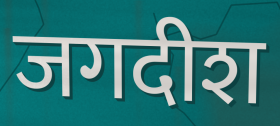
जगदीश